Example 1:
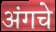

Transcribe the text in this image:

अंगचे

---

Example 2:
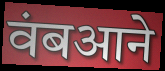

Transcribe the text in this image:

वंबआने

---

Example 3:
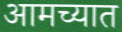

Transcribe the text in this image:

आमच्यात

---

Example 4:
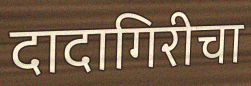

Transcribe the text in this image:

दादागिरीचा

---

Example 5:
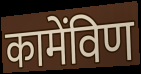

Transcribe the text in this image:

कामेंविण